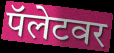
पॅलेटवर